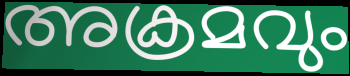
അക്രമവും